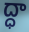
ద్ధా